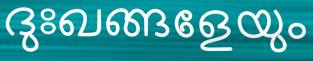
ദുഃഖങ്ങളേയും